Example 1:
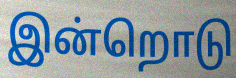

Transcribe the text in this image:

இன்றொடு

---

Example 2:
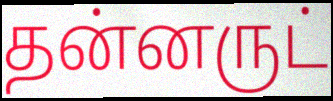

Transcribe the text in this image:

தன்னருட்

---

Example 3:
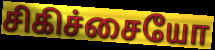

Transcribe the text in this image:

சிகிச்சையோ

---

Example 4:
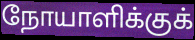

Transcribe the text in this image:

நோயாளிக்குக்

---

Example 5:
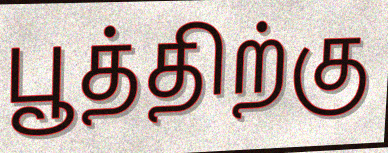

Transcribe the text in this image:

பூத்திற்கு